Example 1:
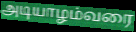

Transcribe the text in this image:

அடியாழம்வரை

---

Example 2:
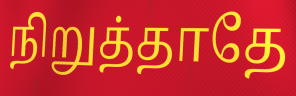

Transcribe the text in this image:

நிறுத்தாதே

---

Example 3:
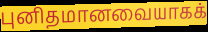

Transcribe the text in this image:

புனிதமானவையாகக்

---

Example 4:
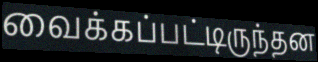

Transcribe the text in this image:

வைக்கப்பட்டிருந்தன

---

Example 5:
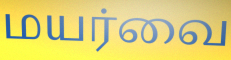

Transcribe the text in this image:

மயர்வை